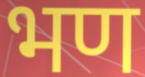
भण